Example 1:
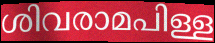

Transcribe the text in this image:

ശിവരാമപിള്ള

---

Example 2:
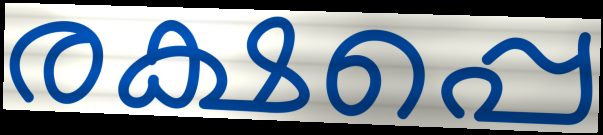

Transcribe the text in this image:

രക്ഷപ്പെ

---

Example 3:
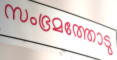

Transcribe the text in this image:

സംഭ്രമത്തോടു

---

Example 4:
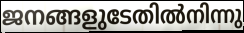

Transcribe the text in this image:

ജനങ്ങളുടേതിൽനിന്നു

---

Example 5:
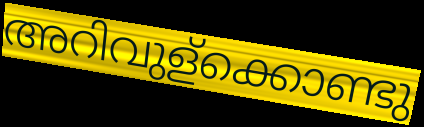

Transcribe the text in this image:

അറിവുള്ക്കൊണ്ടു